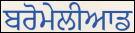
ਬਰੋਮੇਲੀਆਡ